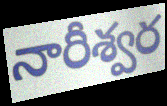
నారీశ్వర